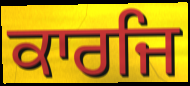
ਕਾਰਜਿ